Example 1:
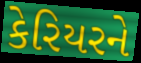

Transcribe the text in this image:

કેરિયરને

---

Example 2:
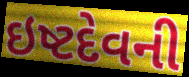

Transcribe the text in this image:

ઇષ્ટદેવની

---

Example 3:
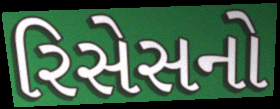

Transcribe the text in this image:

રિસેસનો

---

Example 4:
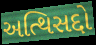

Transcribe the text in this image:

અત્થિસદ્દો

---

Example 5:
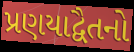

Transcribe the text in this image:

પ્રણયાદ્વૈતનો